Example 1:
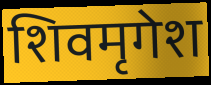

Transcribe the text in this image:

शिवमृगेश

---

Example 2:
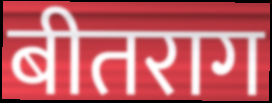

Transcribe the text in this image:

बीतराग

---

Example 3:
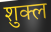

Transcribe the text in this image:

शुक्‍ल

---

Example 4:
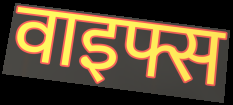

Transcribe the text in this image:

वाइफ्स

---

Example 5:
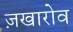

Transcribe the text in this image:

ज़खारोव